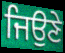
ਜਿਉਣੇ